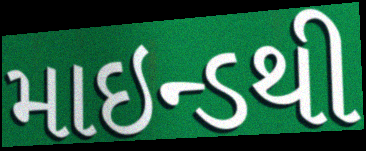
માઇન્ડથી